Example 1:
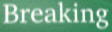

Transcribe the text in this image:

Breaking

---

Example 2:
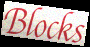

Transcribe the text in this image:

Blocks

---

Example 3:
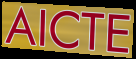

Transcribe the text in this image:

AICTE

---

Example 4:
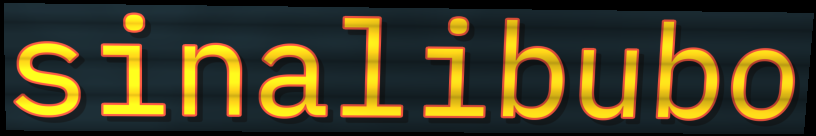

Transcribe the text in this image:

sinalibubo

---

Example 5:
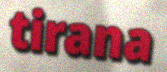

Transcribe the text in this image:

tirana